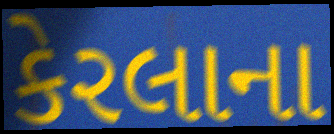
કેરલાના